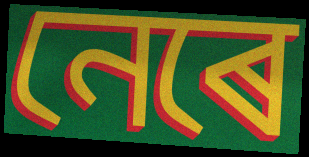
নেৰে